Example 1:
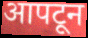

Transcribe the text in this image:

आपटून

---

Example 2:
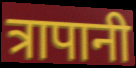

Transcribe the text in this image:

त्रापानी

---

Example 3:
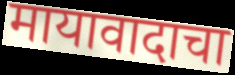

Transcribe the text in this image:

मायावादाचा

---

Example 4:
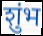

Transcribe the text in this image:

शुंभ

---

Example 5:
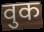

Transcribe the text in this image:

वुक